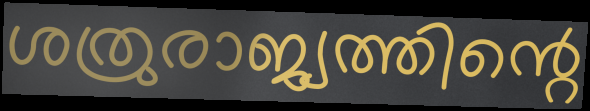
ശത്രുരാജ്യത്തിന്റെ